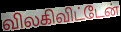
விலகிவிட்டேன்